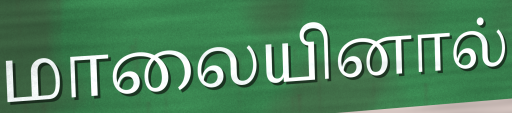
மாலையினால்